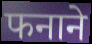
फनाने